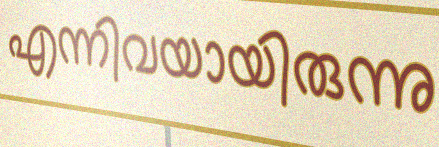
എന്നിവയായിരുന്നു